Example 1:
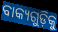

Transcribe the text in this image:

ବାକ୍ୟଗୁଡ଼ିକୁ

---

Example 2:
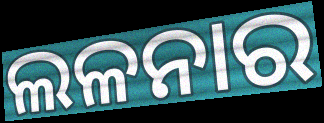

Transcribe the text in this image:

ଲଳନାର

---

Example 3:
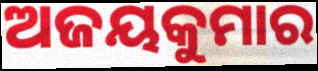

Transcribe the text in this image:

ଅଜୟକୁମାର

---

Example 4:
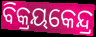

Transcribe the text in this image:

ବିକ୍ରୟକେନ୍ଦ୍ର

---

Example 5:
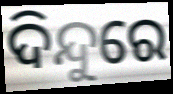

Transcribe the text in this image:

ଦିନ୍ଦୁରେ